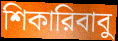
শিকারিবাবু